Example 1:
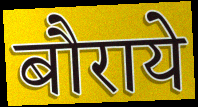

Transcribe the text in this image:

बौराये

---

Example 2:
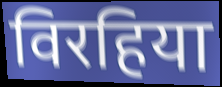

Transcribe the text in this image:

विरहिया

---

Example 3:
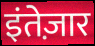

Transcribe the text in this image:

इंतेज़ार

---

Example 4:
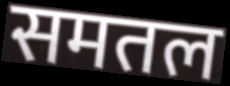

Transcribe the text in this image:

समतल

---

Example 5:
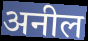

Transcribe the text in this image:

अनील